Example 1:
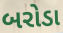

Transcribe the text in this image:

બરોડા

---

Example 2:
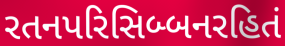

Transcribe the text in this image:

રતનપરિસિબ્બનરહિતં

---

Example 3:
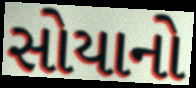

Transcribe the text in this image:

સોયાનો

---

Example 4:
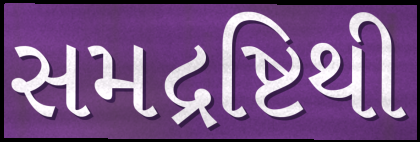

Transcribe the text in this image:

સમદ્રષ્ટિથી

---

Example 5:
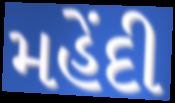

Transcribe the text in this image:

મહેંદી